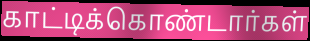
காட்டிக்கொண்டார்கள்